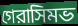
গেরাসিমভ